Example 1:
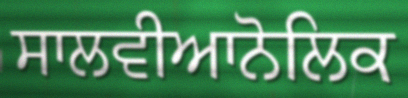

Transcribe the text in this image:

ਸਾਲਵੀਆਨੋਲਿਕ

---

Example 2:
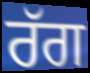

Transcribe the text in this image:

ਰੱਗ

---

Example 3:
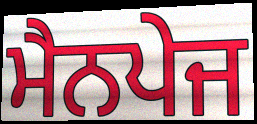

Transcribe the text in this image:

ਮੈਨਪੇਜ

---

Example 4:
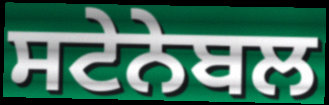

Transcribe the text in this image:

ਸਟੇਨੇਬਲ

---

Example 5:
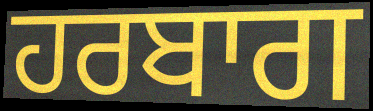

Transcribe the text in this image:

ਹਰਬਾਗ